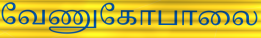
வேணுகோபாலை